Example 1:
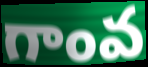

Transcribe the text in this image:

గాంవ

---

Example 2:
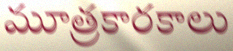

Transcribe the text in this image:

మూత్రకారకాలు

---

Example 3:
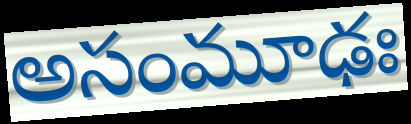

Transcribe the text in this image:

అసంమూఢః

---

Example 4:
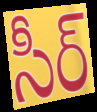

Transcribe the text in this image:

సీర్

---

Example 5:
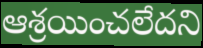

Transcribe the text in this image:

ఆశ్రయించలేదని